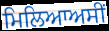
ਮਿਲਿਆਅਸੀਂ